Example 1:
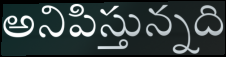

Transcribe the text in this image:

అనిపిస్తున్నది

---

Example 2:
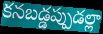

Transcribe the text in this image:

కనబడ్డప్పుడల్లా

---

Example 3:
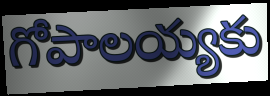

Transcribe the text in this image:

గోపాలయ్యకు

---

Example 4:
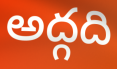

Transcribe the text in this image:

అద్గది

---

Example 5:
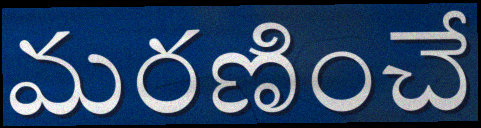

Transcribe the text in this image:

మరణించే